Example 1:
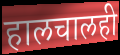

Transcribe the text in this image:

हालचालही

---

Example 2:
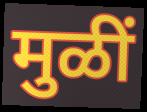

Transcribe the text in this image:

मुळीं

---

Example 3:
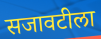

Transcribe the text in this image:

सजावटीला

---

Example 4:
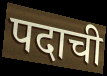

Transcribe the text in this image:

पदाची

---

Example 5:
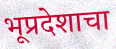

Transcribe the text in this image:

भूप्रदेशाचा